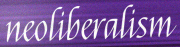
neoliberalism